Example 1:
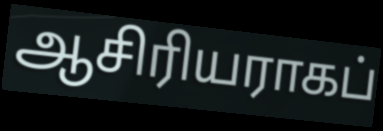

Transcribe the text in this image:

ஆசிரியராகப்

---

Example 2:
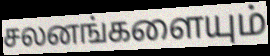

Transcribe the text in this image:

சலனங்களையும்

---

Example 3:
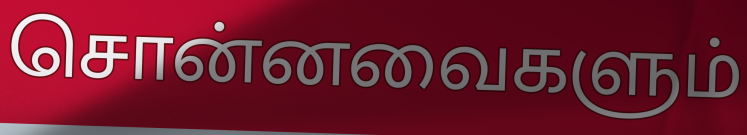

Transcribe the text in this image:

சொன்னவைகளும்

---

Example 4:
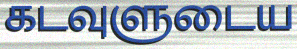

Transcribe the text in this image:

கடவுளுடைய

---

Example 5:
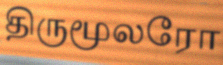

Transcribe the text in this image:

திருமூலரோ